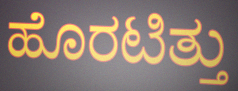
ಹೊರಟಿತ್ತು